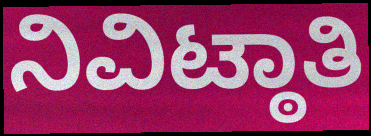
ನಿವಿಟ್ಠಾತಿ